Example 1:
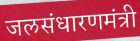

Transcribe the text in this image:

जलसंधारणमंत्री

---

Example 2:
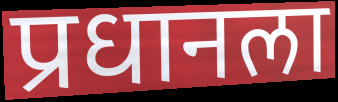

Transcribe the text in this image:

प्रधानला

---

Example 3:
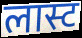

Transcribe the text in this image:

लास्ट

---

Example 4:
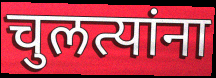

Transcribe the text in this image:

चुलत्यांना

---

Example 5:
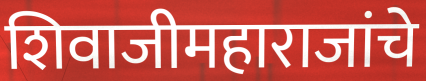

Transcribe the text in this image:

शिवाजीमहाराजांचे